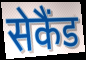
सेकैंड